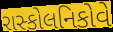
રાસ્કોલનિકોવે